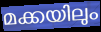
മക്കയിലും